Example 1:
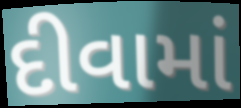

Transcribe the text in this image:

દીવામાં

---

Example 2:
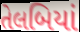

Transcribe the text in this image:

તેલબિયાં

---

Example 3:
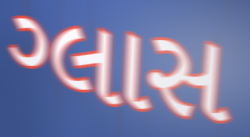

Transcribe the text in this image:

ગ્લાસ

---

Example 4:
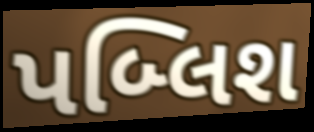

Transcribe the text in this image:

પબ્લિશ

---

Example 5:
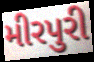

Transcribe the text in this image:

મીરપુરી